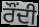
ਰੌਂਦੀ